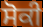
ਸੋਕੀ